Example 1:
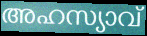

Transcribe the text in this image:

അഹസ്യാവ്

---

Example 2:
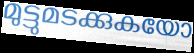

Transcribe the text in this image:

മുട്ടുമടക്കുകയോ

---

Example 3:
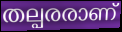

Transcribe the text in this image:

തല്പരരാണ്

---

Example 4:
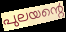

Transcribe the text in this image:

പുലയന്റെ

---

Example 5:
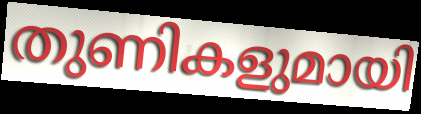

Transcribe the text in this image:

തുണികളുമായി